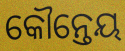
କୌନ୍ତେୟ